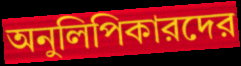
অনুলিপিকারদের